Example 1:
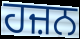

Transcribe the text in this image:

ਹਜ਼ਨ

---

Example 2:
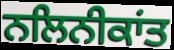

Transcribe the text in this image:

ਨਲਿਨੀਕਾਂਤ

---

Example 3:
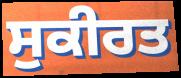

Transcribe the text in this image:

ਸੁਕੀਰਤ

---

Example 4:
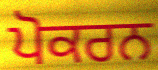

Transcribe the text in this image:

ਪੋਕਰਨ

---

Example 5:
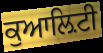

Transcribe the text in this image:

ਕੁਆਲ਼ਿਟੀ